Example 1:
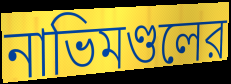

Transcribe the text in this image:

নাভিমণ্ডলের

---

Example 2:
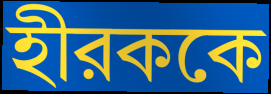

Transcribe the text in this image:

হীরককে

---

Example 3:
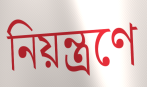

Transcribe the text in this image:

নিয়ন্ত্রণে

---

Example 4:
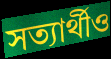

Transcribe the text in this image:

সত্যার্থীও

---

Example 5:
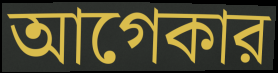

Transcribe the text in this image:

আগেকার